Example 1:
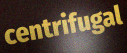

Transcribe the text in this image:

centrifugal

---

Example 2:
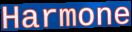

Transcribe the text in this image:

Harmone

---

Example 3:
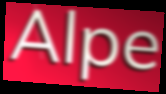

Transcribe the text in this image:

Alpe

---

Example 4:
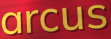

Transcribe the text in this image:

arcus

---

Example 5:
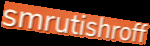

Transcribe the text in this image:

smrutishroff